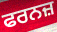
ਫਰਨਜ਼